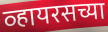
व्हायरसच्या